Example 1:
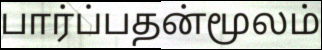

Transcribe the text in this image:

பார்ப்பதன்மூலம்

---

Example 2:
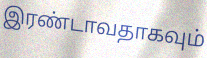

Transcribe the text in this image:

இரண்டாவதாகவும்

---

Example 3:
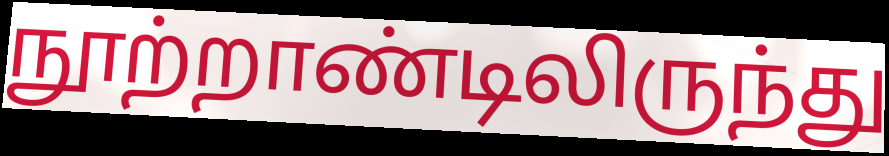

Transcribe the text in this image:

நூற்றாண்டிலிருந்து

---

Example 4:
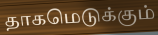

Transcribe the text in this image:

தாகமெடுக்கும்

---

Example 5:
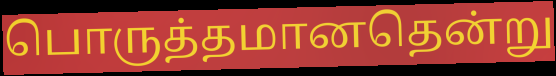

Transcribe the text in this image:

பொருத்தமானதென்று